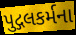
પુદ્ગલકર્મના